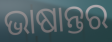
ଭାଷାନ୍ତର